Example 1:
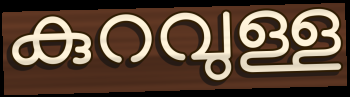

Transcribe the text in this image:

കുറവുള്ള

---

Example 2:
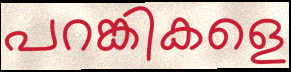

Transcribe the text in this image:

പറങ്കികളെ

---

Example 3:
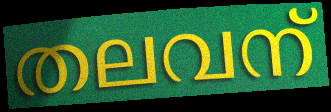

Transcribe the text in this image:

തലവന്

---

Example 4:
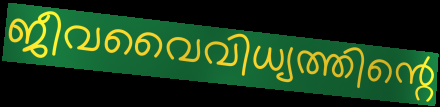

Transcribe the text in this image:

ജീവവൈവിധ്യത്തിന്റെ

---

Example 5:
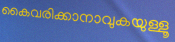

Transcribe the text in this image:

കൈവരിക്കാനാവുകയുള്ളൂ